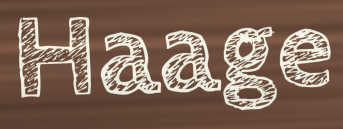
Haage